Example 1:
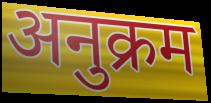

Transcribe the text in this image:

अनुक्रम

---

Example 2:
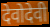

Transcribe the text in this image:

देवोदेवी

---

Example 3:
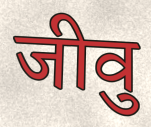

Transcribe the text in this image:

जीवु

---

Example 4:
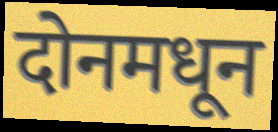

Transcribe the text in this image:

दोनमधून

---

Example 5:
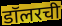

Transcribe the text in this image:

डॉलरची